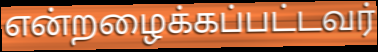
என்றழைக்கப்பட்டவர்